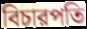
বিচারপতি